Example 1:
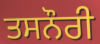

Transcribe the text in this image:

ਤਸਨੌਰੀ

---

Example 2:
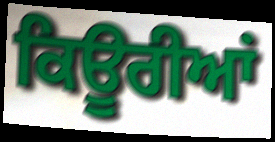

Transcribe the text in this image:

ਕਿਊਰੀਆਂ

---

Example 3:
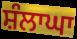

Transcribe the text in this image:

ਸ਼ੰਲਾਘਾ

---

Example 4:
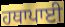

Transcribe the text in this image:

ਹਥਾਪਾਈ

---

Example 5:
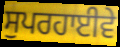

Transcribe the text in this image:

ਸੁਪਰਹਾਈਵੇ